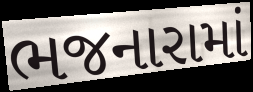
ભજનારામાં